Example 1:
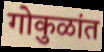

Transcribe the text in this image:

गोकुळांत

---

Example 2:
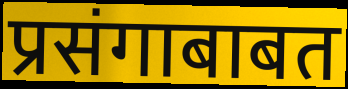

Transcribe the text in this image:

प्रसंगाबाबत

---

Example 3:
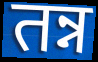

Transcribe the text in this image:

तन्न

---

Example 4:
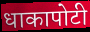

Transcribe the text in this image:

धाकापोटी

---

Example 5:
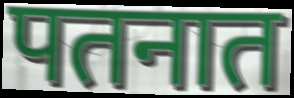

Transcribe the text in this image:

पतनात